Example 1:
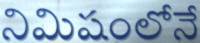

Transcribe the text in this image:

నిమిషంలోనే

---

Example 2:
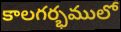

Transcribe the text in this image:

కాలగర్భములో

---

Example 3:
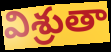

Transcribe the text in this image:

విశ్రుతా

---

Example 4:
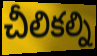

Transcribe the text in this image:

చీలికల్ని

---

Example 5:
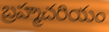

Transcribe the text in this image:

బ్రహ్మచరియం